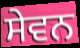
ਸੇਵਨ